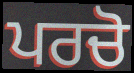
ਪਰਚੋ